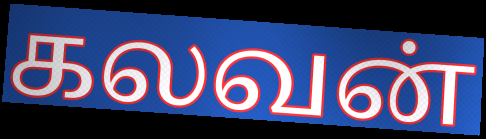
கலவன்